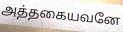
அத்தகையவனே